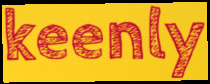
keenly